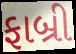
ફાબ્રી